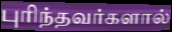
புரிந்தவர்களால்